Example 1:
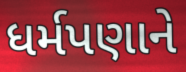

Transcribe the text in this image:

ધર્મપણાને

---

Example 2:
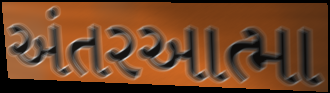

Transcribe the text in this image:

અંતરઆત્મા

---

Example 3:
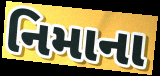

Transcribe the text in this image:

નિમાના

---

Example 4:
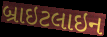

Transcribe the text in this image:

બ્રાઇટલાઇન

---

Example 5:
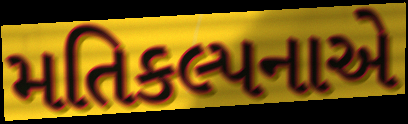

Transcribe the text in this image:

મતિકલ્પનાએ